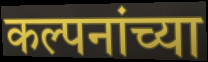
कल्पनांच्या